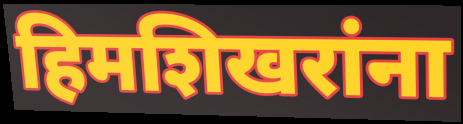
हिमशिखरांना